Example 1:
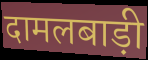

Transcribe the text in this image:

दामलबाड़ी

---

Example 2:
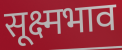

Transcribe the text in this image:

सूक्ष्मभाव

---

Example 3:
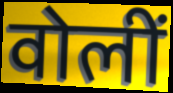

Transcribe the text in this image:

वोलीं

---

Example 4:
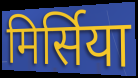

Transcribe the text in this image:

मिर्सिया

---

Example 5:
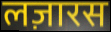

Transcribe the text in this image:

लज़ारस